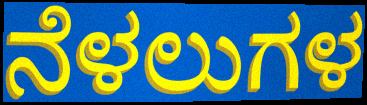
ನೆಳಲುಗಳ